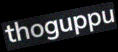
thoguppu